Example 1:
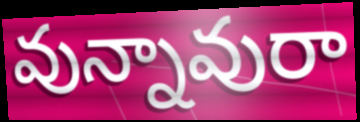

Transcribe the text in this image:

వున్నావురా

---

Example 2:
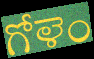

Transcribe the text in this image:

గోళెం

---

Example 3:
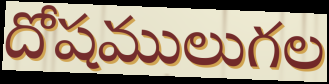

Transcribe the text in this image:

దోషములుగల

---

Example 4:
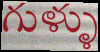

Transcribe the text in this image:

గుళ్ళు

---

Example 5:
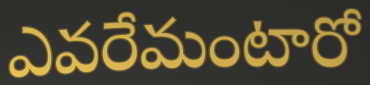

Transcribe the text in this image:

ఎవరేమంటారో